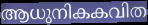
ആധുനികകവിത